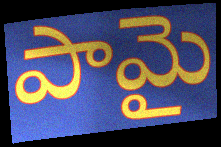
పామై